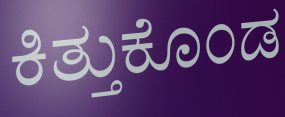
ಕಿತ್ತುಕೊಂಡ